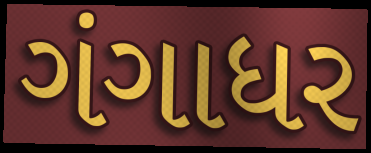
ગંગાધર